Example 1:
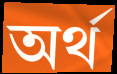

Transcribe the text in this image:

অৰ্থ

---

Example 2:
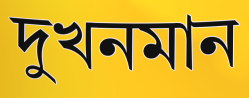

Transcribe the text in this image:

দুখনমান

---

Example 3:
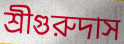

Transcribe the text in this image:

শ্ৰীগুৰুদাস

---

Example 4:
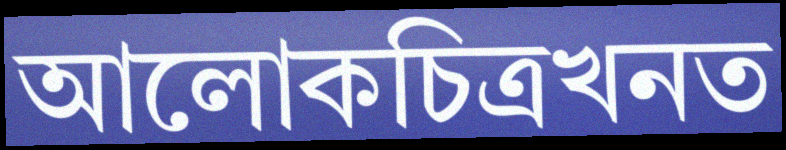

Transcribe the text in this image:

আলোকচিত্ৰখনত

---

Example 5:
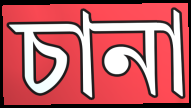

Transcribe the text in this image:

চানা